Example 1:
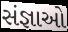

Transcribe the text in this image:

સંજ્ઞાઓ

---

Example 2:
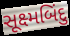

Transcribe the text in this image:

સૂક્ષ્મબિંદુ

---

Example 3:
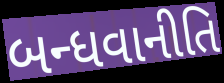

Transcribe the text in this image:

બન્ધવાનીતિ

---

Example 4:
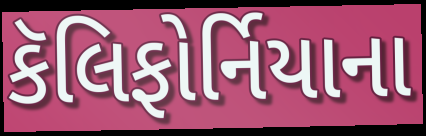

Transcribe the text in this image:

કૅલિફોર્નિયાના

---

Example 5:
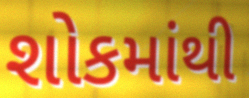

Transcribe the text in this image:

શોકમાંથી